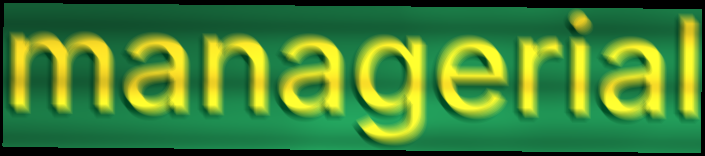
managerial